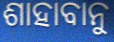
ଶାହାବାନୁ